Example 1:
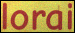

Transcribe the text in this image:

lorai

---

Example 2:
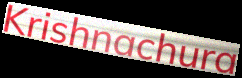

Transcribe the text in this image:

Krishnachura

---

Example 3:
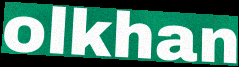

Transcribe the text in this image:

olkhan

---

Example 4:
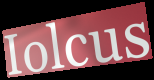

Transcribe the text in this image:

Iolcus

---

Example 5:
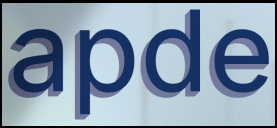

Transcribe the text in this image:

apde